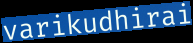
varikudhirai